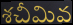
శచీమివ